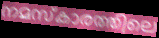
നമസ്കാരത്തിലെ